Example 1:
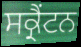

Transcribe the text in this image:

ਸਕ੍ਰੈਂਟਨ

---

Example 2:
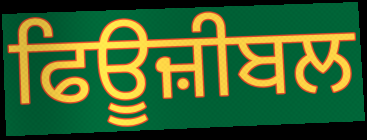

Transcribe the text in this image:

ਫਿਊਜ਼ੀਬਲ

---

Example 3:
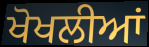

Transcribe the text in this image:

ਖੋਖਲੀਆਂ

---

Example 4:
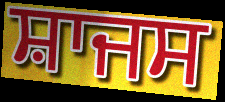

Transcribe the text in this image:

ਸ਼ਾਜਸ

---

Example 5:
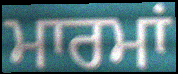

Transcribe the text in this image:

ਮਾਰਮਾਂ